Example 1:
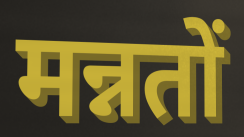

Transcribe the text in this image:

मन्नतों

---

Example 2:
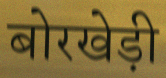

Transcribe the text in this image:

बोरखेड़ी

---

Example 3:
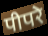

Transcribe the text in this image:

पीपरे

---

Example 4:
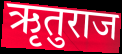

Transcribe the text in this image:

ऋृतुराज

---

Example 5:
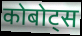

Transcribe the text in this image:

कोबोट्स